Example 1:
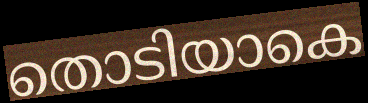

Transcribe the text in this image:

തൊടിയാകെ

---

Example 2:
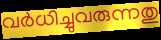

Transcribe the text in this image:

വർധിച്ചുവരുന്നതു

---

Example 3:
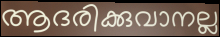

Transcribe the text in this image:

ആദരിക്കുവാനല്ല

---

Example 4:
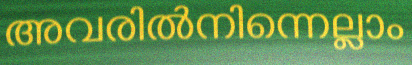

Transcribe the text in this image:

അവരിൽനിന്നെല്ലാം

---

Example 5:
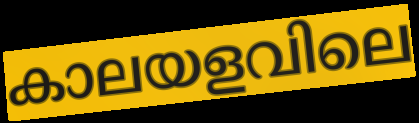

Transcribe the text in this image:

കാലയളവിലെ